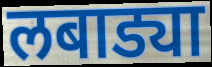
लबाड्या